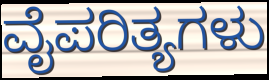
ವೈಪರಿತ್ಯಗಳು